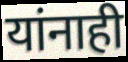
यांनाही